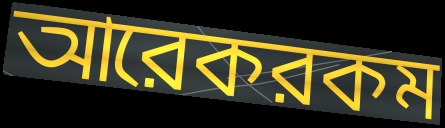
আরেকরকম